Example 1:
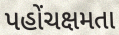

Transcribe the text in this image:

પહોંચક્ષમતા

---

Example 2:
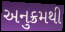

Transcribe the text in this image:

અનુક્રમથી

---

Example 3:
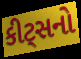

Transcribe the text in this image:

કીટ્સનો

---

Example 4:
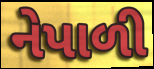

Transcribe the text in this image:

નેપાળી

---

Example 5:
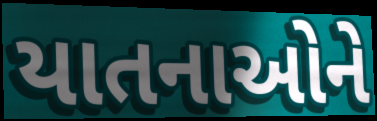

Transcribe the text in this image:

યાતનાઓને